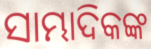
ସାମ୍ଭାଦିକଙ୍କ